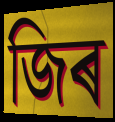
জিৰ